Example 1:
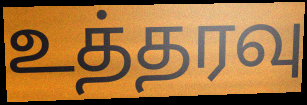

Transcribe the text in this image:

உத்தரவு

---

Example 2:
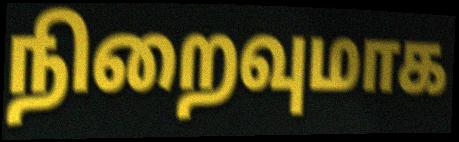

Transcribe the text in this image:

நிறைவுமாக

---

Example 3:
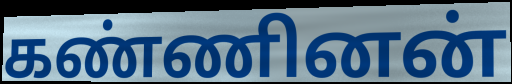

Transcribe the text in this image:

கண்ணினன்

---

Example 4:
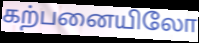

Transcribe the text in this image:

கற்பனையிலோ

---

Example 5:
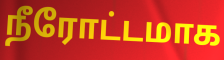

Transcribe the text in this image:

நீரோட்டமாக